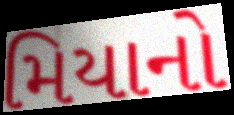
મિયાનો